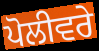
ਪੋਲੀਵਰੇ